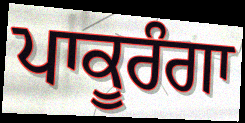
ਪਾਕੂਰੰਗਾ